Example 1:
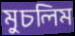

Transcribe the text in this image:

মুচলিম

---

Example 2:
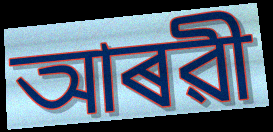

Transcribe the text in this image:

আৰৱী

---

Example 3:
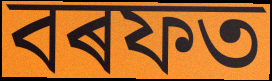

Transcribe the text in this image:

বৰফত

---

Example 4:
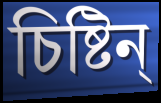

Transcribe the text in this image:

চিষ্টিন্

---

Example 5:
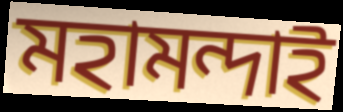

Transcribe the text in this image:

মহামন্দাই